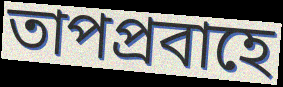
তাপপ্রবাহে